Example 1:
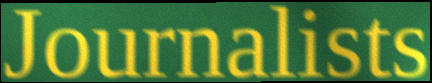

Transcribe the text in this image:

Journalists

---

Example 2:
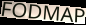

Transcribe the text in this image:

FODMAP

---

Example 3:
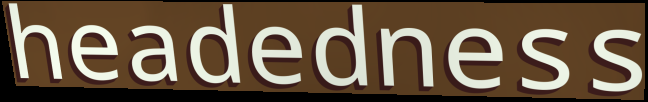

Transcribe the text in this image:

headedness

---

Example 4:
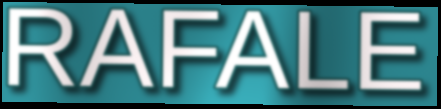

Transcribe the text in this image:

RAFALE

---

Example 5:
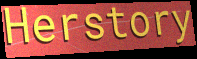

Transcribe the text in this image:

Herstory